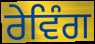
ਰੇਵਿੰਗ